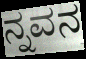
ನ್ನವನ